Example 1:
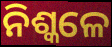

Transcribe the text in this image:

ନିଶ୍କଳେ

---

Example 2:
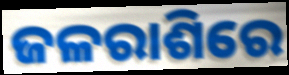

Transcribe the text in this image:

ଜଳରାଶିରେ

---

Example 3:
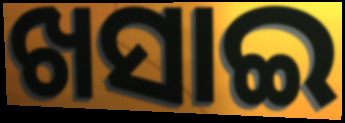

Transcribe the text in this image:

ଖସାଇ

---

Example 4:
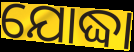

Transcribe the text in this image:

ଯୋଦ୍ଧା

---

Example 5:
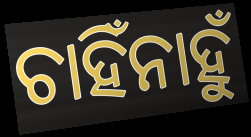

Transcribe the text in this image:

ଚାହିଁନାହୁଁ